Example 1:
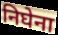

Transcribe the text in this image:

निघेना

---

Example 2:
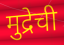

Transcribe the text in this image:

मुद्रेची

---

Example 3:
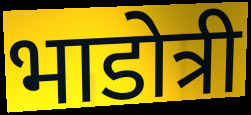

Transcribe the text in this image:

भाडोत्री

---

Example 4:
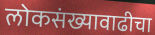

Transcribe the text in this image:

लोकसंख्यावाढीचा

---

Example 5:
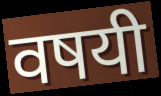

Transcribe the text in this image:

वषयी